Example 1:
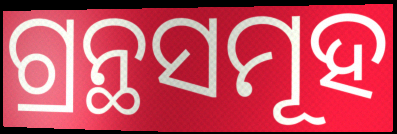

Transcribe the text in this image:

ଗ୍ରନ୍ଥସମୂହ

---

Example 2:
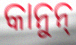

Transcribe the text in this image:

କାନୁନ୍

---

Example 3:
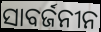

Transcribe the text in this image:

ସାବର୍ଜନୀନ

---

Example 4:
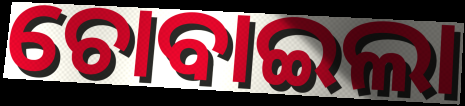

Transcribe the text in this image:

ଚୋବାଇଲା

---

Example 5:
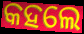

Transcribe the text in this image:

କହଲେ